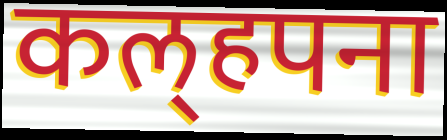
कल्हपना